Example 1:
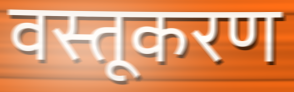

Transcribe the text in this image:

वस्तूकरण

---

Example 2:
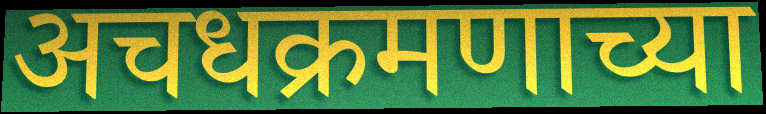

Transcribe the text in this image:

अचधक्रमणाच्या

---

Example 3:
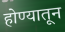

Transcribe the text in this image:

होण्यातून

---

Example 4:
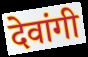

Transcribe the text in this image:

देवांगी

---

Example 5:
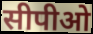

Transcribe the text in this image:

सीपीओ